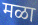
मळा